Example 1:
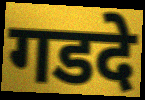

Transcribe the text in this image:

गडदे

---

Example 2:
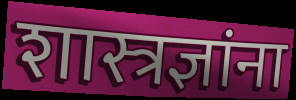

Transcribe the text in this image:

शास्त्रज्ञांना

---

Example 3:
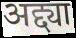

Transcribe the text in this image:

अद्द्या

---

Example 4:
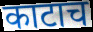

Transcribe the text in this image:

काटाच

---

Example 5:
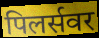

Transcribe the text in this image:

पिलर्सवर